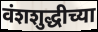
वंशशुद्धीच्या